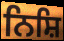
ਨਿਸ਼ਿ